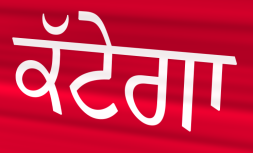
ਕੱਟੇਗਾ